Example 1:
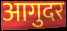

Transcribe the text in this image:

आगुदर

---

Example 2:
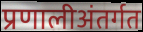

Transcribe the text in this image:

प्रणालीअंतर्गत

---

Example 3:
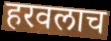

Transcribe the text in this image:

हरवलाच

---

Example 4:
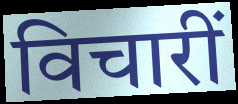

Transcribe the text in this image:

विचारीं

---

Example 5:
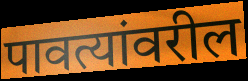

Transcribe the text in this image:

पावत्यांवरील